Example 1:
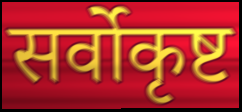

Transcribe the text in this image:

सर्वोकृष्ट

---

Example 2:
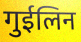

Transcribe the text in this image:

गुईलिन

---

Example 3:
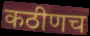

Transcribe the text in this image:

कठीणच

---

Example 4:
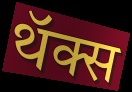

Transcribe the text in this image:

थॅक्स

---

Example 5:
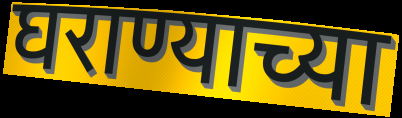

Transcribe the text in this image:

घराण्याच्या